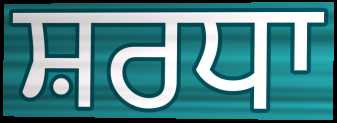
ਸ਼ਰਧਾ